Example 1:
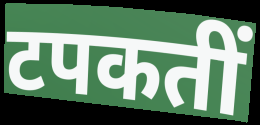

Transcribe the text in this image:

टपकतीं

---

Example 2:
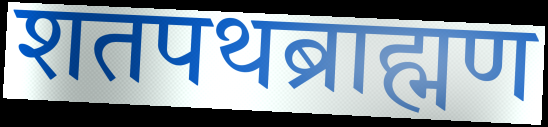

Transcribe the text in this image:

शतपथब्राह्मण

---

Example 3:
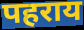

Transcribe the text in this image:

पहराय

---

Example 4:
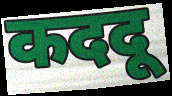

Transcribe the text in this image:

कददू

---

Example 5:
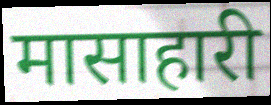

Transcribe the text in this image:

मासाहारी